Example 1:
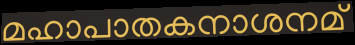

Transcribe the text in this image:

മഹാപാതകനാശനമ്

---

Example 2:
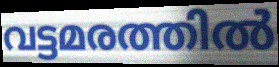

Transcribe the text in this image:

വട്ടമരത്തിൽ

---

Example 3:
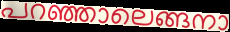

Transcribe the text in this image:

പറഞ്ഞാലെങ്ങനാ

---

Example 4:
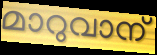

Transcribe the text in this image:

മാറുവാന്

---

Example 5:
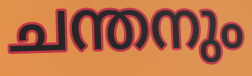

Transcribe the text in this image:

ചന്തനും